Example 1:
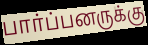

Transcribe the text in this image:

பார்ப்பனருக்கு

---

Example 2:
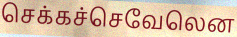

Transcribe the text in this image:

செக்கச்செவேலென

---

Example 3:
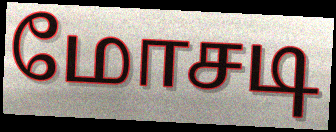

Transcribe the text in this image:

மோசடி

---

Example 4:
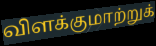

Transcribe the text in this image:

விளக்குமாற்றுக்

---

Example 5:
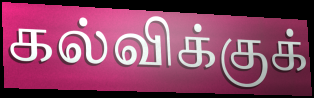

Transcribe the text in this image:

கல்விக்குக்